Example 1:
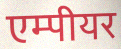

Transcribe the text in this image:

एम्पीयर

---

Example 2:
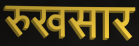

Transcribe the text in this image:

रुखसार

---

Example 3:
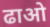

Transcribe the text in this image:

ढाओ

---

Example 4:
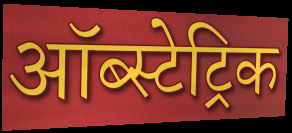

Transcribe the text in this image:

ऑब्स्टेट्रिक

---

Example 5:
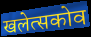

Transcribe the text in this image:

खलेत्सकोव